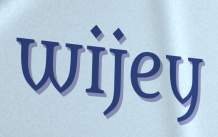
wijey